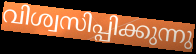
വിശ്വസിപ്പിക്കുന്നു